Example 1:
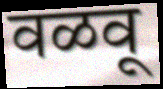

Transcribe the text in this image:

वळवू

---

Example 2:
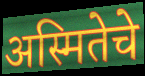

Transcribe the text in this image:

अस्मितेचे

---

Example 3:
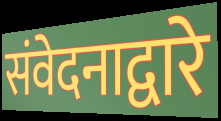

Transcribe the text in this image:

संवेदनाद्वारे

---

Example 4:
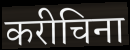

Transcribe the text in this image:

करीचिना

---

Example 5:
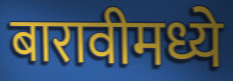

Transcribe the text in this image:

बारावीमध्ये